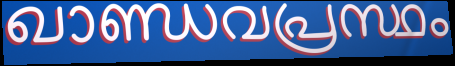
ഖാണ്ഡവപ്രസ്ഥം